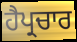
ਹੈਪ੍ਰਚਾਰ